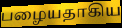
பழையதாகிய